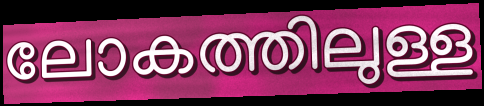
ലോകത്തിലുള്ള